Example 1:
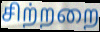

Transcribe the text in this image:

சிற்றறை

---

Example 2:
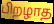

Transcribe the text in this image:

பிறழாத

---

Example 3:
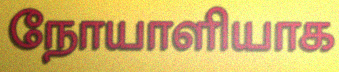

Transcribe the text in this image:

நோயாளியாக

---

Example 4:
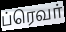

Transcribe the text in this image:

ப்ரெவர்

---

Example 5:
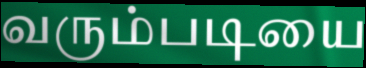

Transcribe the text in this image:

வரும்படியை